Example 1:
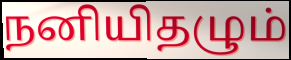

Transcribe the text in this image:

நனியிதழும்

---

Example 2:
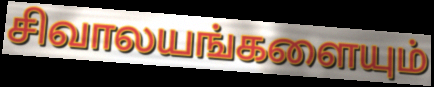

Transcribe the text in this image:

சிவாலயங்களையும்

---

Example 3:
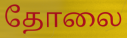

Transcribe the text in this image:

தோலை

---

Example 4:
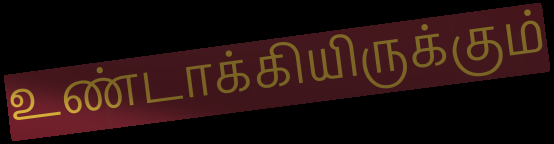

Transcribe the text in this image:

உண்டாக்கியிருக்கும்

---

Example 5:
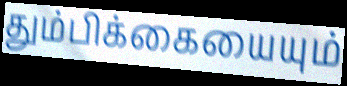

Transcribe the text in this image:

தும்பிக்கையையும்